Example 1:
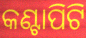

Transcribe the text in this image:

କଣ୍ଟାପିଟି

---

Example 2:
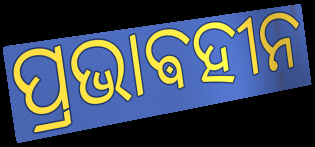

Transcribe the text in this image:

ପ୍ରଭାଵହୀନ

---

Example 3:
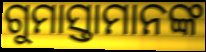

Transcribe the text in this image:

ଗୁମାସ୍ତାମାନଙ୍କ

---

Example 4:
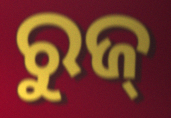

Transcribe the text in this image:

ରୁଜ୍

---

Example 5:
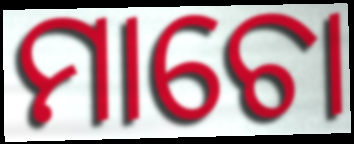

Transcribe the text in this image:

ମାଚୋ